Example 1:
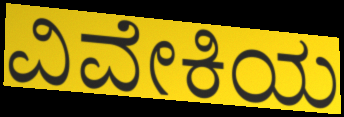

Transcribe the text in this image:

ವಿವೇಕಿಯ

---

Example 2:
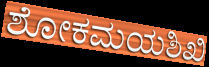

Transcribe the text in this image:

ಶೋಕಮಯಶಿಖಿ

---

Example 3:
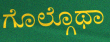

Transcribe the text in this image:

ಗೊಲ್ಗೊಥಾ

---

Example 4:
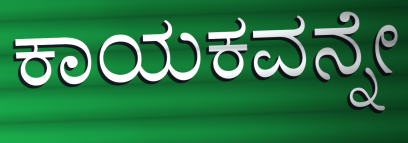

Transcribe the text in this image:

ಕಾಯಕವನ್ನೇ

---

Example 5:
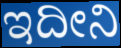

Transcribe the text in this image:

ಇದೀನಿ